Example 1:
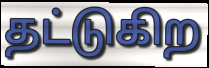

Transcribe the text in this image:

தட்டுகிற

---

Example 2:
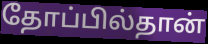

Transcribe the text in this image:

தோப்பில்தான்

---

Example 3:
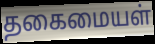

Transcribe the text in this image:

தகைமையள்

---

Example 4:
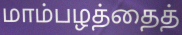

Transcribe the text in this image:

மாம்பழத்தைத்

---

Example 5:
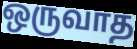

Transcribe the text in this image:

ஒருவாத